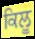
ਕਿਲੂ